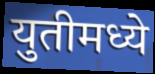
युतीमध्ये